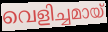
വെളിച്ചമായ്